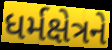
ધર્મક્ષેત્રને